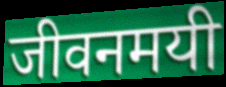
जीवनमयी